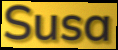
Susa